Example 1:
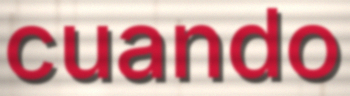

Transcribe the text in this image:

cuando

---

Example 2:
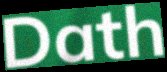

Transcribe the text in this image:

Dath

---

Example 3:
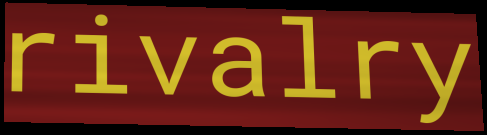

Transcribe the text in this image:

rivalry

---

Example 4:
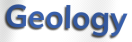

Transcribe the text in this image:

Geology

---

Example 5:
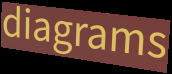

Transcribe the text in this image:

diagrams